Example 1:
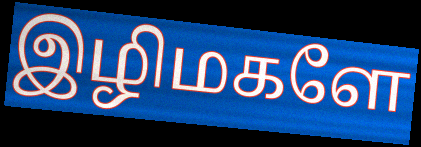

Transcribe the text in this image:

இழிமகளே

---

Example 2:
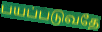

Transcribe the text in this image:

பயப்படுவதே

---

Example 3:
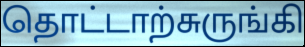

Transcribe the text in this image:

தொட்டாற்சுருங்கி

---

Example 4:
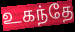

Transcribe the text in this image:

உகந்தே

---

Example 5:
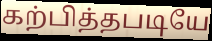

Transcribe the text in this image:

கற்பித்தபடியே